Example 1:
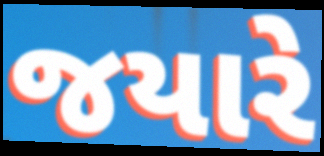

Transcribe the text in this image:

જયારે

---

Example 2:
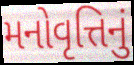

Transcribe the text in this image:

મનોવૃત્તિનું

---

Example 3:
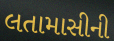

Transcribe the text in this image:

લતામાસીની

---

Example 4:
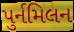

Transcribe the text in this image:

પુર્નમિલન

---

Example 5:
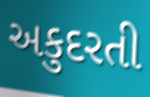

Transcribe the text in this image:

અકુદરતી